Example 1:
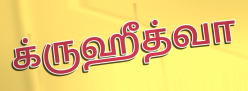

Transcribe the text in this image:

க்ருஹீத்வா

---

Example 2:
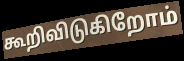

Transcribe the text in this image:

கூறிவிடுகிறோம்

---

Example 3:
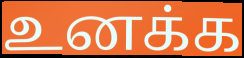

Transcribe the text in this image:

உனக்க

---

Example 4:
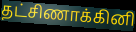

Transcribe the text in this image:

தட்சிணாக்கினி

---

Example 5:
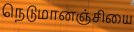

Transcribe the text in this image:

நெடுமானஞ்சியை